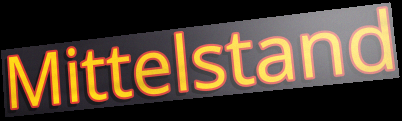
Mittelstand